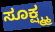
ಸೂಕ್ಷ್ಮ್ಮ